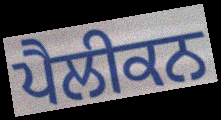
ਪੈਲੀਕਨ